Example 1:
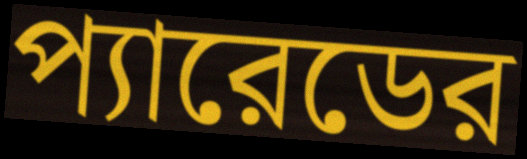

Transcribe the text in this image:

প্যারেডের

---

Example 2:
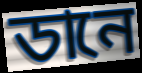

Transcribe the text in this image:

ডানে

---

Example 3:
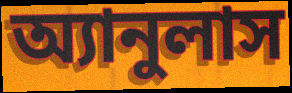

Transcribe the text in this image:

অ্যানুলাস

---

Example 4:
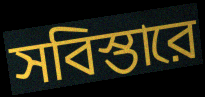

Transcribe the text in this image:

সবিস্তারে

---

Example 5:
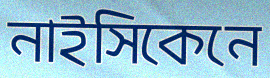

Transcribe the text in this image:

নাইসিকেনে